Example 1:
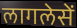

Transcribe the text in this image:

लागलेसें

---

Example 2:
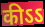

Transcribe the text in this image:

कीऽऽ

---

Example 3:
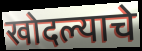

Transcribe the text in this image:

खोदल्याचे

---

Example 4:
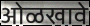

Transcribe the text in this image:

ओळखावे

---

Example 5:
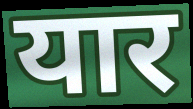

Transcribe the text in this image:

यार